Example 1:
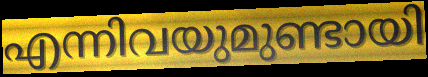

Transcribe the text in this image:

എന്നിവയുമുണ്ടായി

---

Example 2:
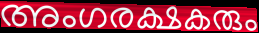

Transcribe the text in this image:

അംഗരക്ഷകരും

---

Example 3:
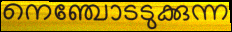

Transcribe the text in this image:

നെഞ്ചോടടുക്കുന്ന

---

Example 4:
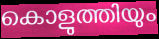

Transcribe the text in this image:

കൊളുത്തിയും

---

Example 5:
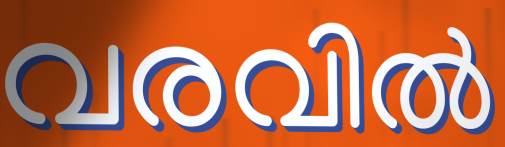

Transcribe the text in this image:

വരവിൽ